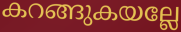
കറങ്ങുകയല്ലേ